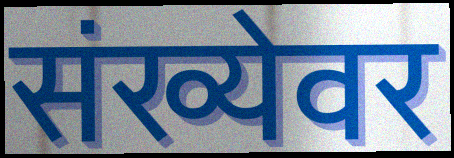
संख्येवर